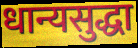
धान्यसुद्धा